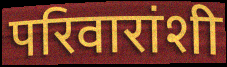
परिवारांशी